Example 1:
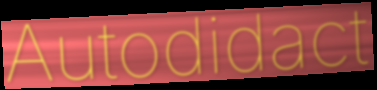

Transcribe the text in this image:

Autodidact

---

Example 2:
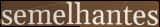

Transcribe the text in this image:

semelhantes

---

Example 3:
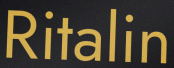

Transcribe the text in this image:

Ritalin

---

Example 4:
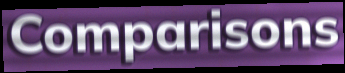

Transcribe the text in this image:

Comparisons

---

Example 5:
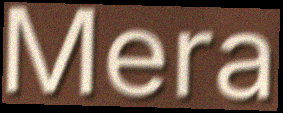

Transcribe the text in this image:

Mera